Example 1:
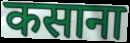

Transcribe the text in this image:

कसाना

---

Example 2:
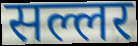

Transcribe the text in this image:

सल्लर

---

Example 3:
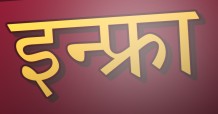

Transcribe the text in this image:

इन्फ्रा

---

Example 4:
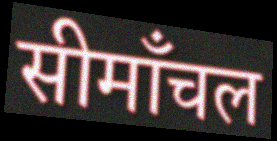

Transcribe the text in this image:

सीमाँचल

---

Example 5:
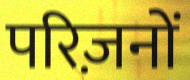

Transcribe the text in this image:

परिज़नों